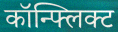
कॉन्फ्लिक्ट